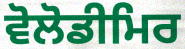
ਵੋਲੋਡੀਮਿਰ